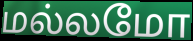
மல்லமோ